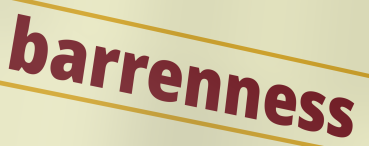
barrenness